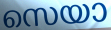
സെയാ